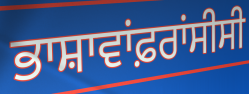
ਭਾਸ਼ਾਵਾਂਫ਼ਰਾਂਸੀਸੀ